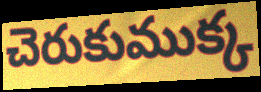
చెరుకుముక్క